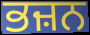
ਭਜ਼ਨ